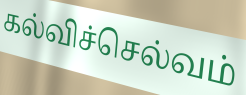
கல்விச்செல்வம்